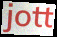
jott